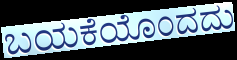
ಬಯಕೆಯೊಂದದು